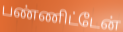
பண்ணிட்டேன்